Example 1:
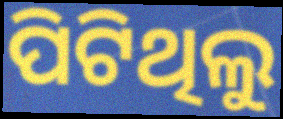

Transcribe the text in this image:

ପିଟିଥିଲୁ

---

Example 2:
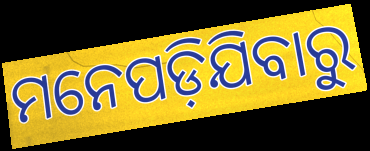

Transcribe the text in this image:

ମନେପଡ଼ିଯିବାରୁ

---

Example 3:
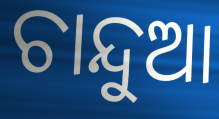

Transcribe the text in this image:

ଚାନ୍ଦୁଆ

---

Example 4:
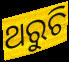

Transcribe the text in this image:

ଥରୁଚି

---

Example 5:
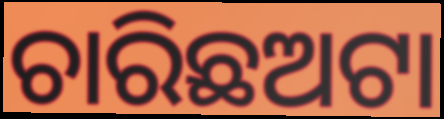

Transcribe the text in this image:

ଚାରିଛଅଟା